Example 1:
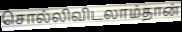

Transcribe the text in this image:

சொல்லிவிடலாம்தான்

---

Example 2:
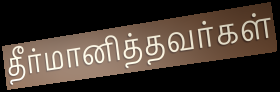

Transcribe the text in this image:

தீர்மானித்தவர்கள்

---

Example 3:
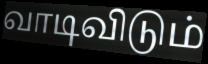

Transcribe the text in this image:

வாடிவிடும்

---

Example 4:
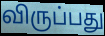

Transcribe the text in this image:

விருப்பது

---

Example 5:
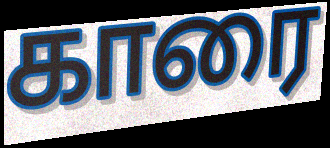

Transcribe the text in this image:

காரை